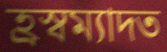
হ্ৰস্বম্যাদত